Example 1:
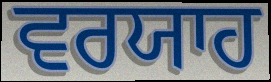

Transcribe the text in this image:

ਵਰਯਾਹ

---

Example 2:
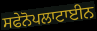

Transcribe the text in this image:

ਸਫੇਨੋਪਲਾਟਾਈਨ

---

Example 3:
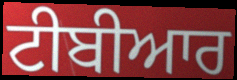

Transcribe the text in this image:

ਟੀਬੀਆਰ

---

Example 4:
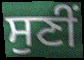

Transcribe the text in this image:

ਸੁਣੀਂ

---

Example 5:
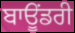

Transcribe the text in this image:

ਬਾਊਂਡਰੀ